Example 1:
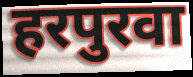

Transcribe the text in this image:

हरपुरवा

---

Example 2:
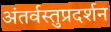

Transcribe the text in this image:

अंतर्वस्तुप्रदर्शन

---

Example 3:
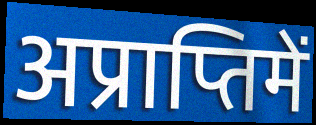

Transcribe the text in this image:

अप्राप्तिमें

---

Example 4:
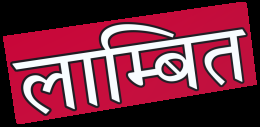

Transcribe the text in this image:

लाम्बित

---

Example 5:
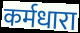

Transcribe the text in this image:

कर्मधारा